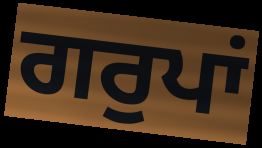
ਗਰੁਪਾਂ